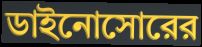
ডাইনোসোরের